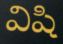
విషి